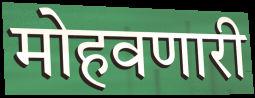
मोहवणारी